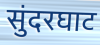
सुंदरघाट